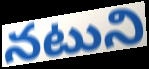
నటుని